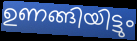
ഉണങ്ങിയിട്ടും